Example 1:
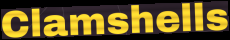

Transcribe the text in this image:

Clamshells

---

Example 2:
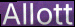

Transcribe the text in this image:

Allott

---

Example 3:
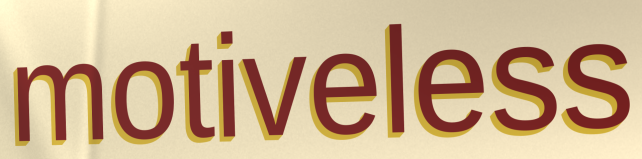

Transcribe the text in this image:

motiveless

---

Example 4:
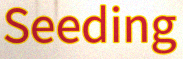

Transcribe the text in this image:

Seeding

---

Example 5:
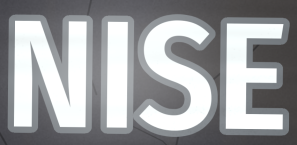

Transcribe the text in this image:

NISE